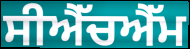
ਸੀਐੱਚਐੱਮ